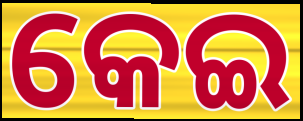
କେଇ